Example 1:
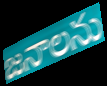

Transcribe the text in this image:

జనాలను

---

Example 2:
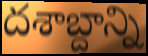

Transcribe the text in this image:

దశాబ్దాన్ని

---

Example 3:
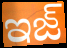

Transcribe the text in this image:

ఇజ్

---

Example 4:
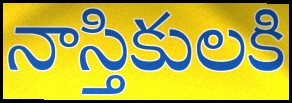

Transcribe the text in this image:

నాస్తికులకి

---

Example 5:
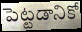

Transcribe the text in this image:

పెట్టడానికో